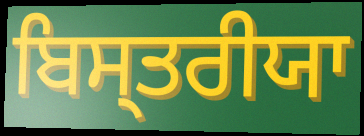
ਬਿਸ੍ਤਰੀਯਾ